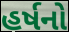
હર્ષનો